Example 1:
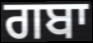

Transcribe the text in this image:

ਗਬਾ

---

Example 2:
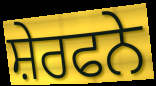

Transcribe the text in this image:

ਸ਼ੇਰਫਨੇ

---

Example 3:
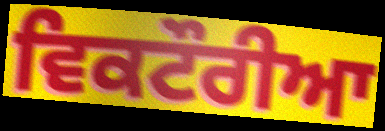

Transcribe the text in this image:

ਵਿਕਟੌਰੀਆ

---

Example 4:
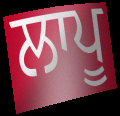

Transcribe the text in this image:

ਲਾਪੂ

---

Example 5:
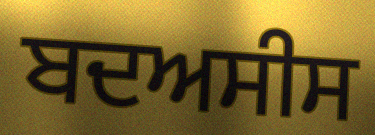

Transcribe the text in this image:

ਬਦਅਸੀਸ